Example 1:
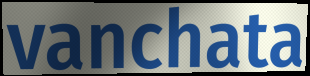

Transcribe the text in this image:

vanchata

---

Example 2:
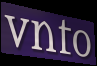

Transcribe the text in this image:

vnto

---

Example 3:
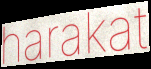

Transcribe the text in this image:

harakat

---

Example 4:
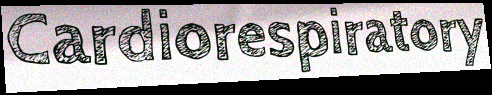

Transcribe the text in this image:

Cardiorespiratory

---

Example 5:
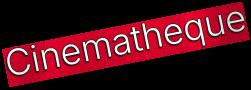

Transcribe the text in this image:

Cinematheque